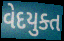
વેદયુક્ત